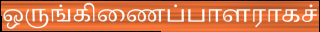
ஒருங்கிணைப்பாளராகச்